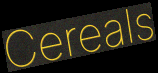
Cereals